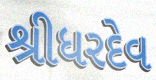
શ્રીધરદેવ